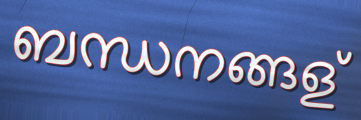
ബന്ധനങ്ങള്